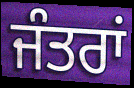
ਜੰਤਰਾਂ